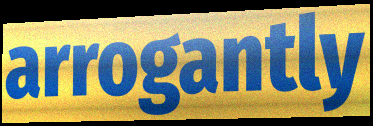
arrogantly